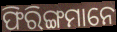
ଫିରିଙ୍ଗମାନେ